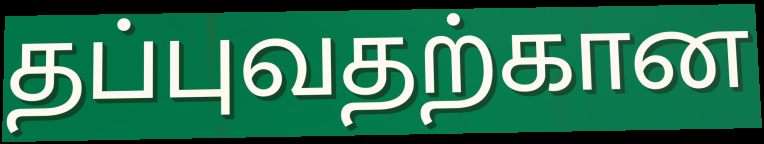
தப்புவதற்கான